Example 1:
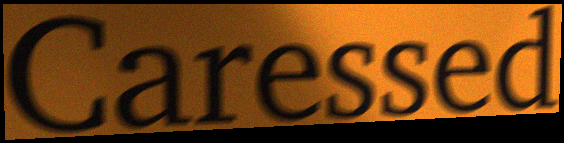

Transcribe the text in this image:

Caressed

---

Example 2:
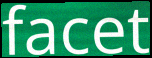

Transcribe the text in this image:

facet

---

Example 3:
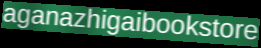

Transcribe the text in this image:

aganazhigaibookstore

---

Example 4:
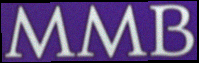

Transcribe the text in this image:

MMB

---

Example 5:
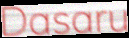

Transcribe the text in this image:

Dasaru